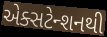
એક્સટેન્શનથી